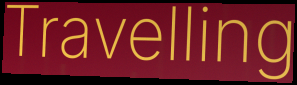
Travelling